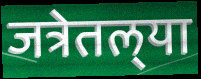
जत्रेतल्या